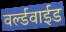
वर्ल्डवाईड